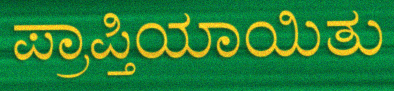
ಪ್ರಾಪ್ತಿಯಾಯಿತು